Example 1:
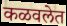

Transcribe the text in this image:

कळवलेत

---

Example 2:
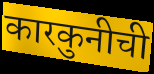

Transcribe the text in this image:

कारकुनीची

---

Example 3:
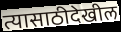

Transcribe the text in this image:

त्यासाठीदेखील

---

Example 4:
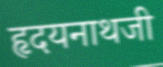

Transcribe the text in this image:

हृदयनाथजी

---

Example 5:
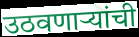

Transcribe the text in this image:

उठवणाऱ्यांची